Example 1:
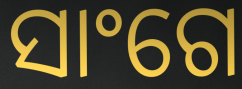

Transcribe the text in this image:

ସାଂଗେ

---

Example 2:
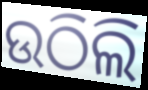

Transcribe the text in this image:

ଉଠିଲି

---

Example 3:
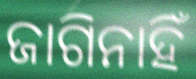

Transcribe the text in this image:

ଜାଗିନାହିଁ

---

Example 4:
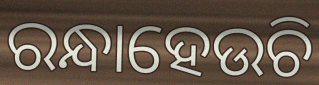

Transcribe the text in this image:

ରନ୍ଧାହେଉଚି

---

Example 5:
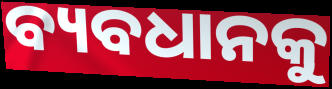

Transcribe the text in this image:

ବ୍ୟବଧାନକୁ